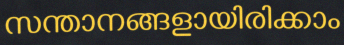
സന്താനങ്ങളായിരിക്കാം